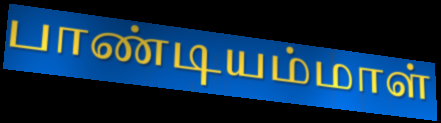
பாண்டியம்மாள்